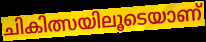
ചികിത്സയിലൂടെയാണ്